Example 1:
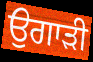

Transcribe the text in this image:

ਉਗਾੜੀ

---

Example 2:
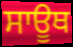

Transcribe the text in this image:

ਸਾਊਥ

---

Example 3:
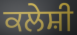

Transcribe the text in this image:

ਕਲੇਸ਼ੀ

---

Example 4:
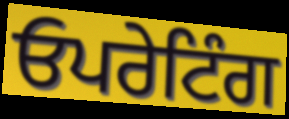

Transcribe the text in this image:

ਓਪਰੇਟਿੰਗ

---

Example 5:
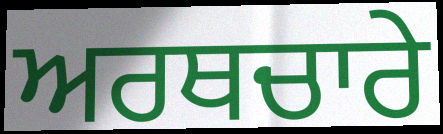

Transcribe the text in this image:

ਅਰਥਚਾਰੇ